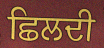
ਛਿਲਦੀ